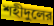
শহীদুলের